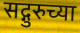
सद्गुरुच्या